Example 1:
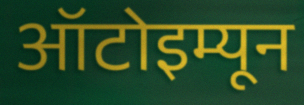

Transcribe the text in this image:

ऑटोइम्यून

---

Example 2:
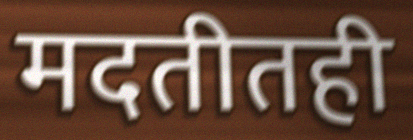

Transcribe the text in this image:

मदतीतही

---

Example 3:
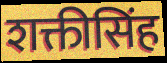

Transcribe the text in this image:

शक्तीसिंह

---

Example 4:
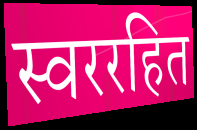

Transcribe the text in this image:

स्वररहित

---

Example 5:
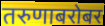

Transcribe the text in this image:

तरुणाबरोबर